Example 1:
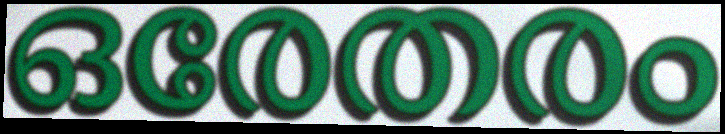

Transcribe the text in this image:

ഒരേതരം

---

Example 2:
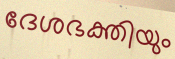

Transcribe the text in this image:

ദേശഭക്തിയും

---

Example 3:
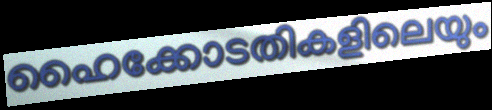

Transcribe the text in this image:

ഹൈക്കോടതികളിലെയും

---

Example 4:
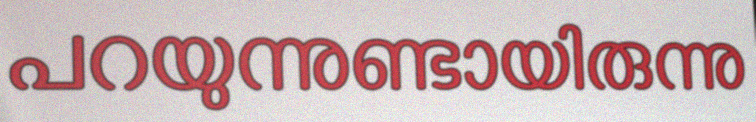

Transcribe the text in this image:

പറയുന്നുണ്ടായിരുന്നു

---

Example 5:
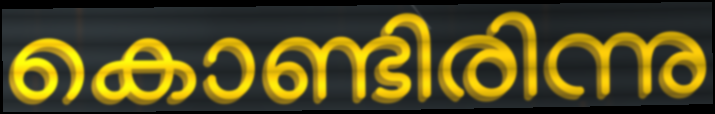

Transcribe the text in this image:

കൊണ്ടിരിന്നു